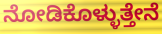
ನೋಡಿಕೊಳ್ಳುತ್ತೇನೆ